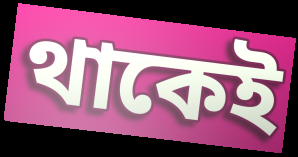
থাকেই